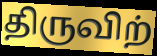
திருவிற்